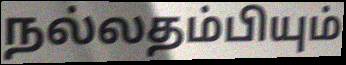
நல்லதம்பியும்